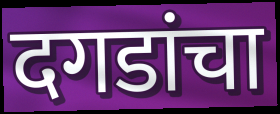
दगडांचा